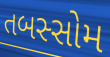
તબસ્સોમ